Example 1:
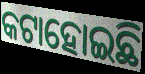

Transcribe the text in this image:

କଟାହୋଇଛି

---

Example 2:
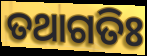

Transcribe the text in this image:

ତଥାଗତିଃ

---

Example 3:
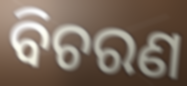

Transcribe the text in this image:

ବିଚରଣ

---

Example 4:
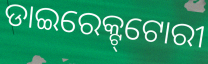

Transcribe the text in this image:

ଡାଇରେକ୍ଟ୍‌ଟୋରୀ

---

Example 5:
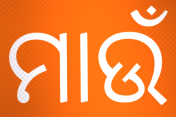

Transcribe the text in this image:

ମାଉଁ